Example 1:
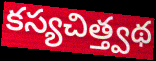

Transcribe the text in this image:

కస్యచిత్త్వథ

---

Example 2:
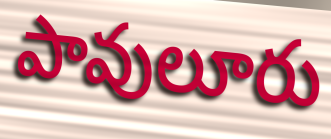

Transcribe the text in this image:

పావులూరు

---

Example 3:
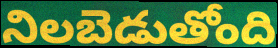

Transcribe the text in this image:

నిలబెడుతోంది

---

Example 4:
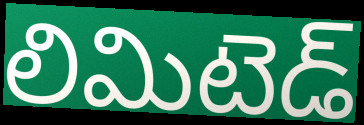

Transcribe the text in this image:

లిమిటెడ్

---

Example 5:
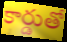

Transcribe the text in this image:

కార్డుతో